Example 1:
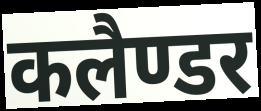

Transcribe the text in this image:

कलैण्डर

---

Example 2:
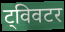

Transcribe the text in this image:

ट्विवटर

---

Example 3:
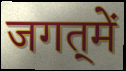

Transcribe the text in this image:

जगत्‌में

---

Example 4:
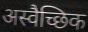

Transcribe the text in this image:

अस्वैच्छिक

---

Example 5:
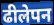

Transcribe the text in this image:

ढीलेपन